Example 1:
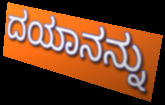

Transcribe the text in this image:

ದಯಾನನ್ನು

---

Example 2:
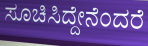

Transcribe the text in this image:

ಸೂಚಿಸಿದ್ದೇನೆಂದರೆ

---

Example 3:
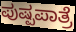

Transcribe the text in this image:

ಪುಷ್ಪಪಾತ್ರೆ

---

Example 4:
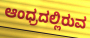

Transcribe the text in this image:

ಆಂಧ್ರದಲ್ಲಿರುವ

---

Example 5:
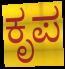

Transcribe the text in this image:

ಕೃಪ